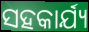
ସହକାର୍ଯ୍ୟ